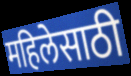
महिलेसाठी